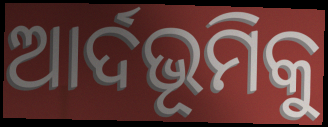
ଆର୍ଦଭୂମିକୁ